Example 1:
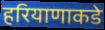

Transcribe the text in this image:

हरियाणाकडे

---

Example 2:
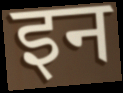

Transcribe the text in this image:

इन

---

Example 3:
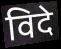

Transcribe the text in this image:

विदे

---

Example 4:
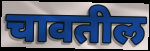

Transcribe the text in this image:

चावतील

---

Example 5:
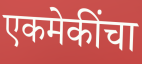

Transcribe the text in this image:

एकमेकींचा